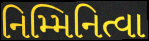
નિમ્મિનિત્વા